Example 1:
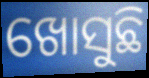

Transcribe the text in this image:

ଖୋସୁଛି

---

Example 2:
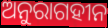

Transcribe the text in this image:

ଅନୁରାଗହୀନ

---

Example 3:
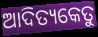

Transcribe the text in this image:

ଆଦିତ୍ୟକେତୁ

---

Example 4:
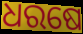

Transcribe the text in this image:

ଧରଷେ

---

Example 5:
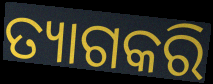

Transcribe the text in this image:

ତ୍ଯାଗକରି